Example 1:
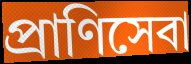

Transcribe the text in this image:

প্রাণিসেবা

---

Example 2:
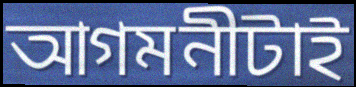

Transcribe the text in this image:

আগমনীটাই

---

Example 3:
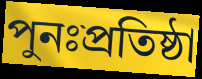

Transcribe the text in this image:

পুনঃপ্রতিষ্ঠা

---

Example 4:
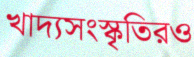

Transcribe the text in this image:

খাদ্যসংস্কৃতিরও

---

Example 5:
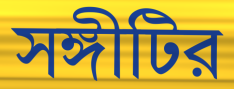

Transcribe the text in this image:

সঙ্গীটির